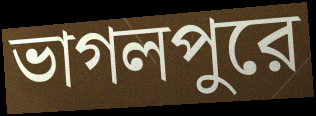
ভাগলপুরে